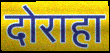
दोराहा